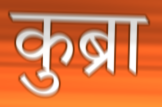
कुब्रा